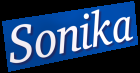
Sonika